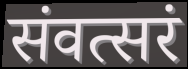
संवत्सरं